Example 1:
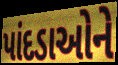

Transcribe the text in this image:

પાંદડાઓને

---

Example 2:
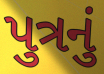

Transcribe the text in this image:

પુત્રનું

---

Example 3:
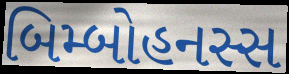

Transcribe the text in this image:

બિમ્બોહનસ્સ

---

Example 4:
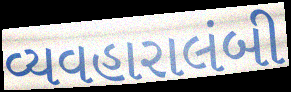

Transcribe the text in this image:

વ્યવહારાલંબી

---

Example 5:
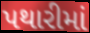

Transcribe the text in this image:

પથારીમાં